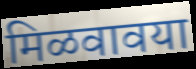
मिळवावया